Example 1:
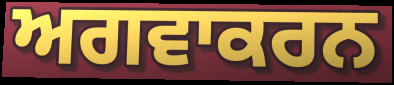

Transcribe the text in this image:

ਅਗਵਾਕਰਨ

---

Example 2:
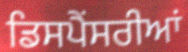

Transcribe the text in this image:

ਡਿਸਪੈਂਸਰੀਆਂ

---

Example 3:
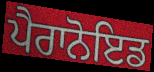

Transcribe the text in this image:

ਪੈਰਾਨੋਇਡ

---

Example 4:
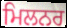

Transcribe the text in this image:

ਮਿਲਨਰ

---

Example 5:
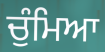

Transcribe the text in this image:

ਚੁੰਮਿਆ